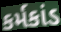
કર્મકાંડ